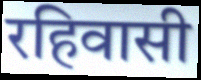
रहिवासी